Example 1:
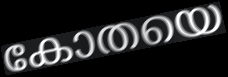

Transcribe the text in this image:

കോതയെ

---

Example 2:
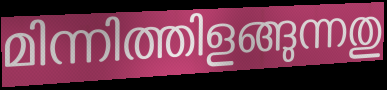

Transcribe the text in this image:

മിന്നിത്തിളങ്ങുന്നതു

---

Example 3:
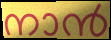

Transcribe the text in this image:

നാൻ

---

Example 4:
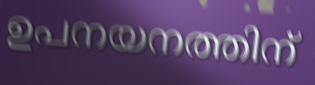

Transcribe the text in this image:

ഉപനയനത്തിന്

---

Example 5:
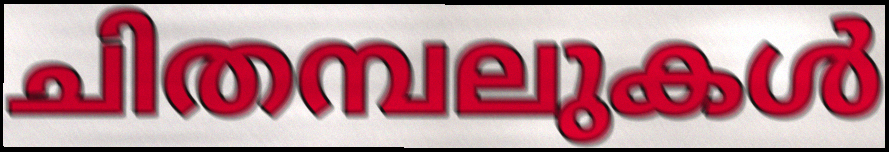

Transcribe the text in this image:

ചിതമ്പലുകൾ